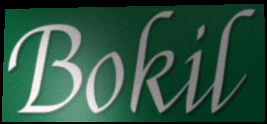
Bokil